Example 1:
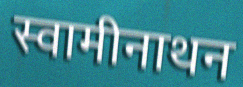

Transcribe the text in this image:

स्वामीनाथन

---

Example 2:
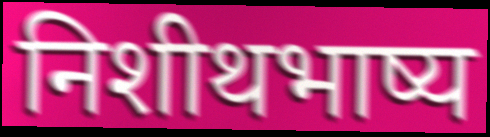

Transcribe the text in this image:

निशीथभाष्य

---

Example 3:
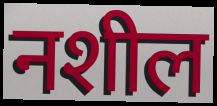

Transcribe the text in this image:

नशील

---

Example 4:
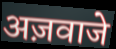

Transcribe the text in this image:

अज़वाजे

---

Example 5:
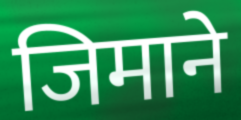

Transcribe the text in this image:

जिमाने